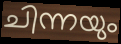
ചിന്നയും